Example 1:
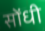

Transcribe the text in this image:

सोंधी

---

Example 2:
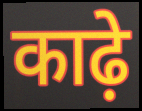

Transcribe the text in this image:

काढ़े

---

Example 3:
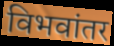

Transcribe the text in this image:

विभवांतर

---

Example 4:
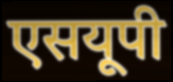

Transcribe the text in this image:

एसयूपी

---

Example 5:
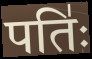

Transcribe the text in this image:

पतिः॑